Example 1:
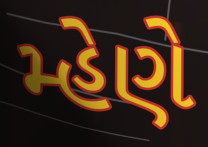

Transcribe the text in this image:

મ્હેણે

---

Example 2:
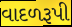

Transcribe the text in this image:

વાદળરૂપી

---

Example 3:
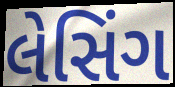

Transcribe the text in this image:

લેસિંગ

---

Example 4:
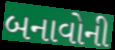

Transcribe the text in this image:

બનાવોની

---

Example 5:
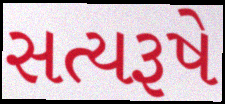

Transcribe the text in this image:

સત્યરૂષે